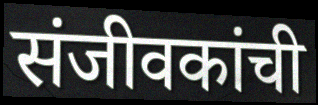
संजीवकांची